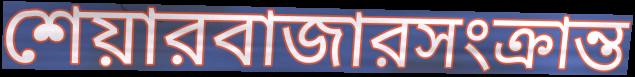
শেয়ারবাজারসংক্রান্ত